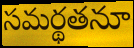
సమర్థతనూ